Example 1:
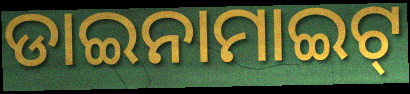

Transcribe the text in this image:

ଡାଇନାମାଇଟ୍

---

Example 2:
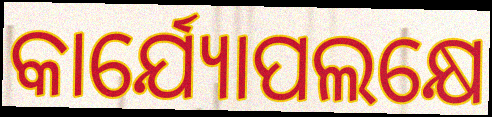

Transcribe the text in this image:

କାର୍ଯ୍ୟୋପଲକ୍ଷେ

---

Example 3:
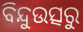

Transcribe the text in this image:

ବିନ୍ଦୁଉତ୍ସରୁ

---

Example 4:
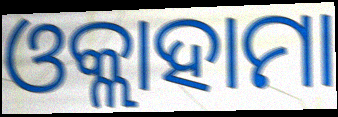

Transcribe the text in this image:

ଓକ୍ଲାହାମା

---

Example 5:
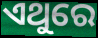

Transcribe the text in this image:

ଏଥୁରେ